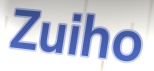
Zuiho